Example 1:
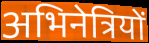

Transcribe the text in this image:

अभिनेत्रियों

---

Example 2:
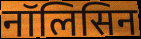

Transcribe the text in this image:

नॉलिसिन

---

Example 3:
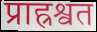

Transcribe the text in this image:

प्राह्रश्वत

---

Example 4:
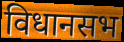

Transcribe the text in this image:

विधानसभ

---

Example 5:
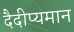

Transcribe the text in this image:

दैदीप्यमान